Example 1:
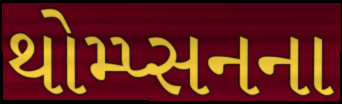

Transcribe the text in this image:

થોમ્પ્સનના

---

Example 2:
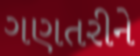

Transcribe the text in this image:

ગણતરીને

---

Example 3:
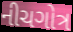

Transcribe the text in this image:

નીચગોત્ર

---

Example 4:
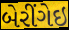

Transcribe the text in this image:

બેરીંગેઇ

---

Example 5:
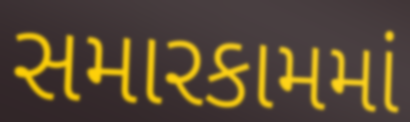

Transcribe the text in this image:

સમારકામમાં